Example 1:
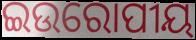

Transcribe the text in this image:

ଇଉରୋପୀୟ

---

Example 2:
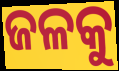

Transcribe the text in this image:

ଜଳକୁ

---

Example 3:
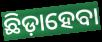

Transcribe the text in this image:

ଛିଡ଼ାହେବା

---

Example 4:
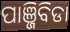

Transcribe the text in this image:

ପାଞ୍ଜିବିଡା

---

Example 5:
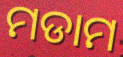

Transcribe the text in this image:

ମଡାମ